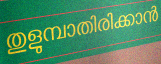
തുളുമ്പാതിരിക്കാൻ